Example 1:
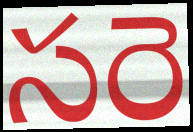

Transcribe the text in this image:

సరె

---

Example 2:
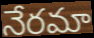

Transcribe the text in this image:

నేరమా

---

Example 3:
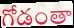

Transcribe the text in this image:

గోడంతా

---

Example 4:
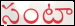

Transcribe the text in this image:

సంటా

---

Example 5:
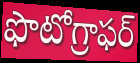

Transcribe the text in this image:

ఫొటోగ్రాఫర్